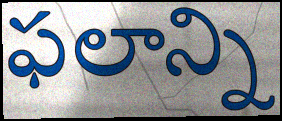
ఫలాన్ని